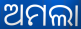
ଅମଲା